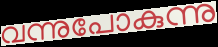
വന്നുപോകുന്നു